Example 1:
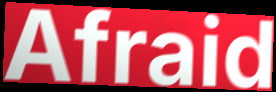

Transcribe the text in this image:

Afraid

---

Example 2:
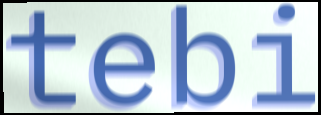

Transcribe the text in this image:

tebi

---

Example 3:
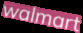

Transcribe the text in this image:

walmart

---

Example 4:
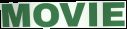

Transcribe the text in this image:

MOVIE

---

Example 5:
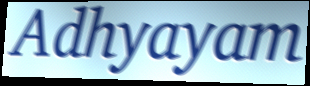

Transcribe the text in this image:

Adhyayam